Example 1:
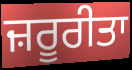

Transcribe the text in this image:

ਜ਼ਰੂਰੀਤਾ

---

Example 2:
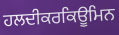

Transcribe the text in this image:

ਹਲਦੀਕਰਕਿਊਮਿਨ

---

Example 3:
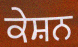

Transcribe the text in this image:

ਕੇਸ਼ਨ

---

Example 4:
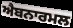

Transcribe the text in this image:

ਐਬਨਾਰਮਲ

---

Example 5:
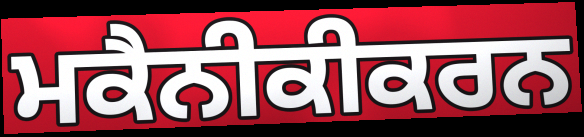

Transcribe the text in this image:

ਮਕੈਨੀਕੀਕਰਨ